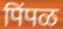
पिंपळ